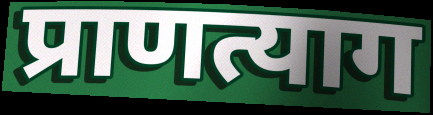
प्राणत्याग